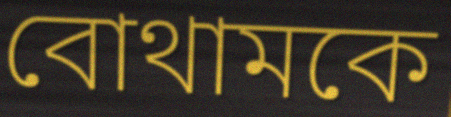
বোথামকে